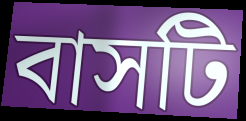
বাসটি